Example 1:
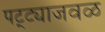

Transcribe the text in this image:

पट्ट्याजवळ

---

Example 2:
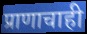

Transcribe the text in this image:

प्राणाचाही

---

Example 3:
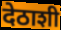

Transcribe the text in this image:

देठाशी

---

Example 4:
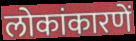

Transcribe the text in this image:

लोकांकारणें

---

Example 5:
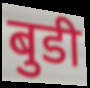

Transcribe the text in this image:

बुडी